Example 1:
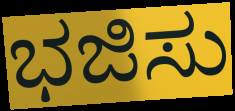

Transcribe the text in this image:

ಭಜಿಸು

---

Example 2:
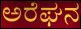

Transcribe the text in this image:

ಅರೆಘನ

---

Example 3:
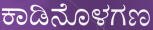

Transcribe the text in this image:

ಕಾಡಿನೊಳಗಣ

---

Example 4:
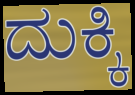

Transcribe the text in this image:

ದುಕ್ಕಿ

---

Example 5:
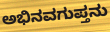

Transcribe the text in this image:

ಅಭಿನವಗುಪ್ತನು